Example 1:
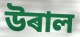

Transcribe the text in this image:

উৰাল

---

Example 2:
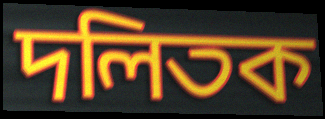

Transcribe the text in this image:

দলিতক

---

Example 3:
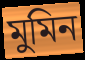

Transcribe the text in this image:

মুমিন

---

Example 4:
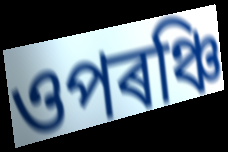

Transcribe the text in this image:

ওপৰঞ্চি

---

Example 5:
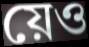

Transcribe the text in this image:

য়েও